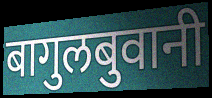
बागुलबुवानी